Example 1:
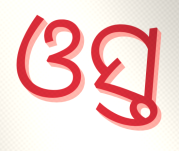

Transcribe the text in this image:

ଓସ୍ତ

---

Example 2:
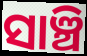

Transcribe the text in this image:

ସାଞ୍ଚି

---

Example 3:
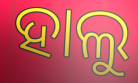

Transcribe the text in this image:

ହାଲୁ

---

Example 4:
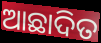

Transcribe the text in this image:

ଆଛାଦିତ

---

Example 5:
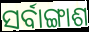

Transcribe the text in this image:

ସର୍ବାଙ୍ଗାଶ